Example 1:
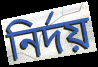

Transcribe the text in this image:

নির্দয়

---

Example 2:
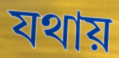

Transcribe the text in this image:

যথায়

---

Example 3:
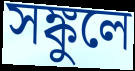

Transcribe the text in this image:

সঙ্কুলে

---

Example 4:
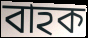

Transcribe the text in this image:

বাহক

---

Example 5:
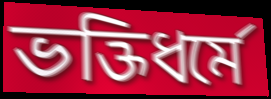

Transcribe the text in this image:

ভক্তিধর্মে